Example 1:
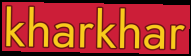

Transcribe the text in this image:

kharkhar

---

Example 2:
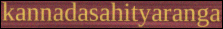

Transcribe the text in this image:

kannadasahityaranga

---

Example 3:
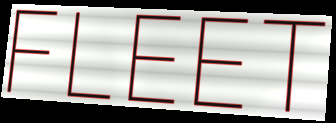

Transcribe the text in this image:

FLEET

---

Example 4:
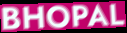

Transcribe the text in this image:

BHOPAL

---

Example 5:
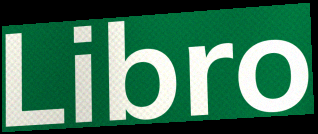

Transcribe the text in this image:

Libro